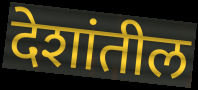
देशांतील